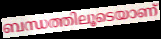
ബന്ധത്തിലൂടെയാണ്